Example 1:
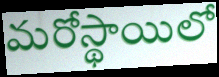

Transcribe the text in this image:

మరోస్థాయిలో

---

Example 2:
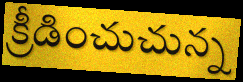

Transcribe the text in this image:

క్రీడించుచున్న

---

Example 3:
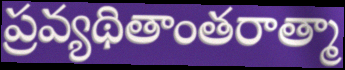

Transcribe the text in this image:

ప్రవ్యథితాంతరాత్మా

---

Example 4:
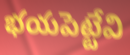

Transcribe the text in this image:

భయపెట్టేవి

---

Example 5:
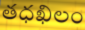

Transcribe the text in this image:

తధఖిలం